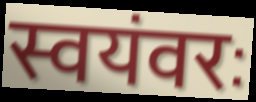
स्वयंवरः